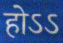
होऽऽ